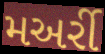
મઅર્રી